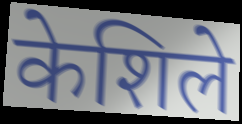
केशिले